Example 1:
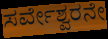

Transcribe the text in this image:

ಸರ್ವೇಶ್ವರನೇ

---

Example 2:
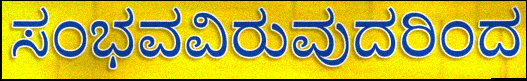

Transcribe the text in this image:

ಸಂಭವವಿರುವುದರಿಂದ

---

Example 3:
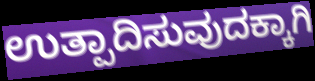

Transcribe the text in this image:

ಉತ್ಪಾದಿಸುವುದಕ್ಕಾಗಿ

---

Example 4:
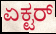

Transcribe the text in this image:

ಏಕ್ಟರ್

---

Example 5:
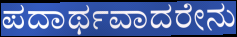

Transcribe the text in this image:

ಪದಾರ್ಥವಾದರೇನು